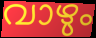
വാഴും